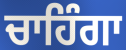
ਚਾਹਿੰਗਾ